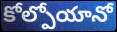
కోల్పోయానో